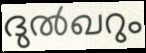
ദുൽഖറും